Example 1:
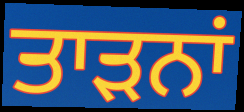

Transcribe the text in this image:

ਤਾੜਨਾਂ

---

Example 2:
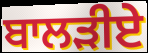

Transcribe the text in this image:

ਬਾਲੜੀਏ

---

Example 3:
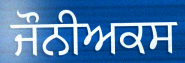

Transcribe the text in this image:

ਜੌਨੀਅਕਸ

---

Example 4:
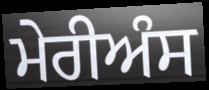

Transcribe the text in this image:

ਮੇਰੀਅੰਸ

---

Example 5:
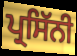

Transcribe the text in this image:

ਪ੍ਰਸਿੱਨੀ